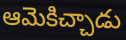
ఆమెకిచ్చాడు